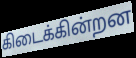
கிடைக்கின்றன